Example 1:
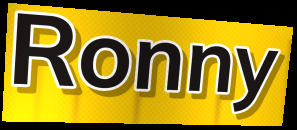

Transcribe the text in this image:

Ronny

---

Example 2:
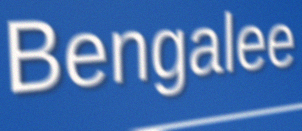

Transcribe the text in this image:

Bengalee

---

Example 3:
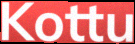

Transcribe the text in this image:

Kottu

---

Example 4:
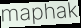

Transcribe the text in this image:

maphak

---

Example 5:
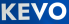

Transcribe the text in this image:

KEVO